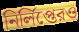
নির্লিপ্তেরও